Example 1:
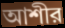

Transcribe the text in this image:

আশীর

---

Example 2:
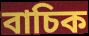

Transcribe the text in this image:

বাচিক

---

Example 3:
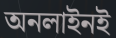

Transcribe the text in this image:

অনলাইনই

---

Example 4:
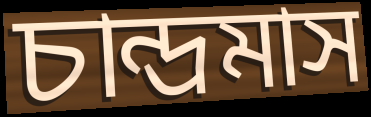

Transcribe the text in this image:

চান্দ্রমাস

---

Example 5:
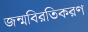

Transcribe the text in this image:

জন্মবিরতিকরণ